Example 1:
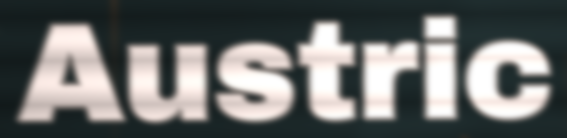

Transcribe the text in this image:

Austric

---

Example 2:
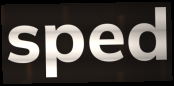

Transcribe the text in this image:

sped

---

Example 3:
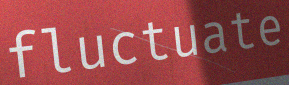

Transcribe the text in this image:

fluctuate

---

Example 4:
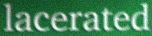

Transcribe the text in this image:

lacerated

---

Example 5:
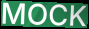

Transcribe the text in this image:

MOCK